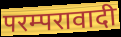
परम्परावादी